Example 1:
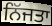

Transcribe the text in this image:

ਨਿੱਜਤਾ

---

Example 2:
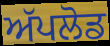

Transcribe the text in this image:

ਅੱਪਲੋਡ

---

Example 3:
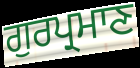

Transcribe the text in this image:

ਗੁਰਪ੍ਰਮਾਣ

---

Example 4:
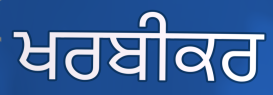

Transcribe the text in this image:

ਖਰਬੀਕਰ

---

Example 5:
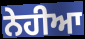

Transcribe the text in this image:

ਨੇਹੀਆ